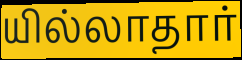
யில்லாதார்